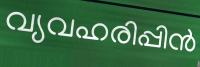
വ്യവഹരിപ്പിൻ